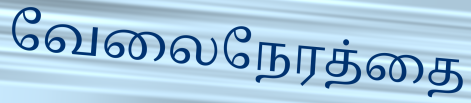
வேலைநேரத்தை